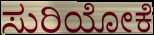
ಸುರಿಯೋಕೆ